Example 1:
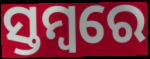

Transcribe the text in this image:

ସ୍ତମ୍ବରେ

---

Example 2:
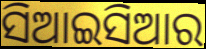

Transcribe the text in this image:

ସିଆଇସିଆର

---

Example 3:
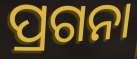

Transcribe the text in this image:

ପ୍ରଗନା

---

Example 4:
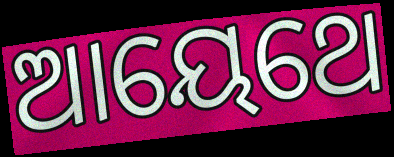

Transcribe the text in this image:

ଆୟେଥେ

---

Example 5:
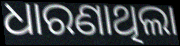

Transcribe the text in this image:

ଧାରଣାଥିଲା